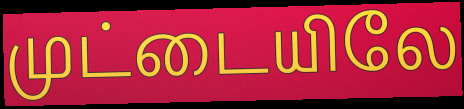
முட்டையிலே